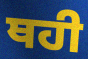
ਥਹੀ